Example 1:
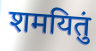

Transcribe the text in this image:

शमयितुं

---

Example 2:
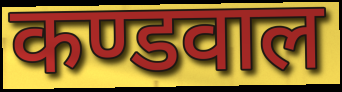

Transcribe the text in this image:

कण्डवाल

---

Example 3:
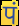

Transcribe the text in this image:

पं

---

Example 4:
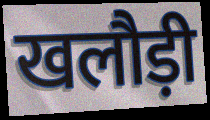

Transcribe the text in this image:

खलौड़ी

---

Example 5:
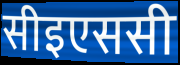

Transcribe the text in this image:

सीइएससी